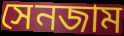
সেনজাম